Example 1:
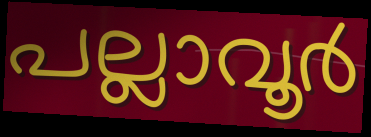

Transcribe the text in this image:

പല്ലാവൂർ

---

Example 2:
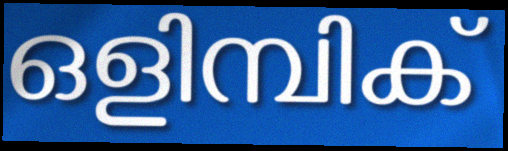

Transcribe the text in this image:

ഒളിമ്പിക്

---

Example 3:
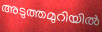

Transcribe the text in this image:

അടുത്തമുറിയിൽ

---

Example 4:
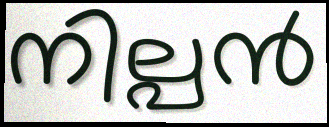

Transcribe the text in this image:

നില്പൻ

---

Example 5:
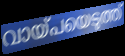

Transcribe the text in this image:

വായ്പയെടുത്ത്